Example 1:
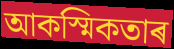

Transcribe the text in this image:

আকস্মিকতাৰ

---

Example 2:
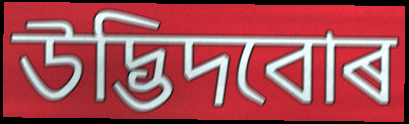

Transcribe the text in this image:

উদ্ভিদবোৰ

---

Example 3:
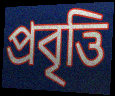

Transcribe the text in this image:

প্ৰবৃত্তি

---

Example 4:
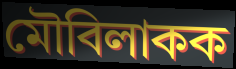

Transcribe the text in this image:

মৌবিলাকক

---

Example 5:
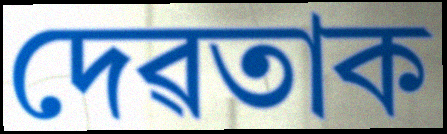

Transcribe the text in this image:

দেৱতাক